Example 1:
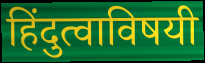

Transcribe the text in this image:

हिंदुत्वाविषयी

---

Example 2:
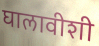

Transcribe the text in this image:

घालावीशी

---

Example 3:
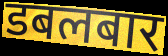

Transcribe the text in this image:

डबलबार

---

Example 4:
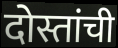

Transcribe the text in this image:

दोस्तांची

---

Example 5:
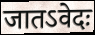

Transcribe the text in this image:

जातऽवेदः